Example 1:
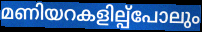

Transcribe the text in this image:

മണിയറകളില്പ്പോലും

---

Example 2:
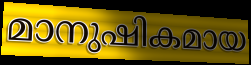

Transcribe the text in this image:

മാനുഷികമായ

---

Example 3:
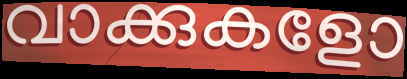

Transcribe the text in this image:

വാക്കുകളോ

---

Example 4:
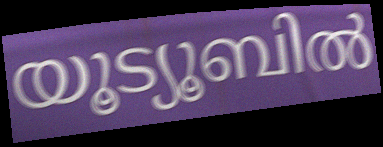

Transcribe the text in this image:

യൂട്യൂബിൽ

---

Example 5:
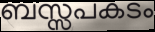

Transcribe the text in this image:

ബസ്സപകടം